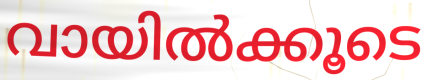
വായിൽക്കൂടെ